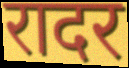
रादर